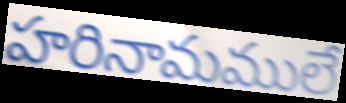
హరినామములే